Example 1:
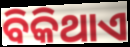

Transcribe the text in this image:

ବିକିଥାଏ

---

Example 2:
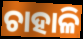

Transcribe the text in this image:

ଚାହାଳି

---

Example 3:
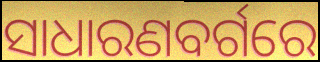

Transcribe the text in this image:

ସାଧାରଣବର୍ଗରେ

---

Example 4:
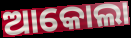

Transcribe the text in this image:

ଆକୋଲା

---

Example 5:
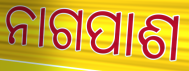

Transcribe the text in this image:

ନାଗପାଶ